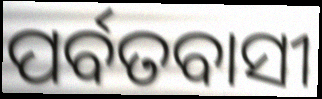
ପର୍ବତବାସୀ